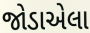
જોડાએલા